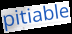
pitiable